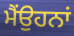
ਮੈਂਉਹਨਾਂ